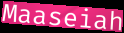
Maaseiah